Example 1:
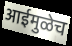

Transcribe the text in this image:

आईमुळेच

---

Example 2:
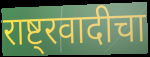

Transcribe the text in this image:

राष्ट्रवादीचा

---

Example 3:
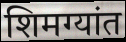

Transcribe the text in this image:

शिमग्यांत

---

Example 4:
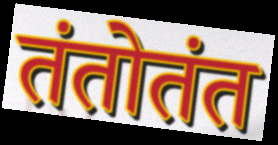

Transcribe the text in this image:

तंतोतंत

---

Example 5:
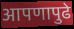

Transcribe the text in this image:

आपणापुढे